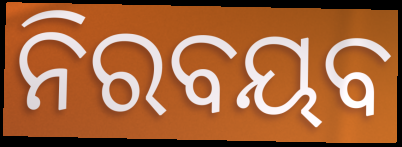
ନିରବୟବ